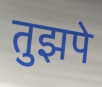
तुझपे